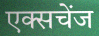
एक्सचेंज